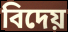
বিদেয়